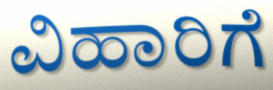
ವಿಹಾರಿಗೆ